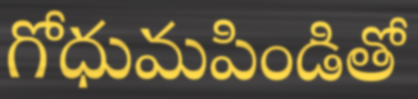
గోధుమపిండితో